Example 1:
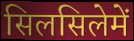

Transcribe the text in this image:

सिलसिलेमें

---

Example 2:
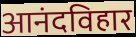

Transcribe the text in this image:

आनंदविहार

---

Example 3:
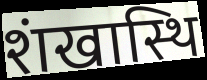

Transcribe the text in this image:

शंखास्थि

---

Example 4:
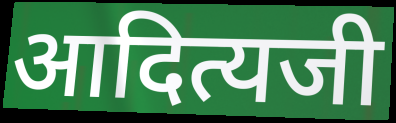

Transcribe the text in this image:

आदित्यजी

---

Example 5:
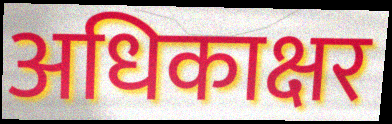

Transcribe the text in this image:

अधिकाक्षर